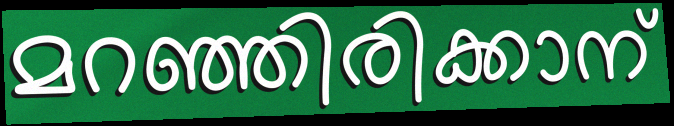
മറഞ്ഞിരിക്കാന്